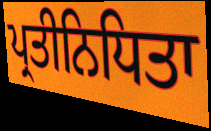
ਪ੍ਰਤੀਨਿਧਿਤਾ